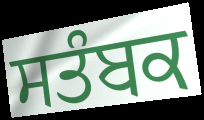
ਸਤੰਬਕ